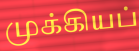
முக்கியப்